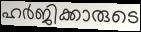
ഹർജിക്കാരുടെ